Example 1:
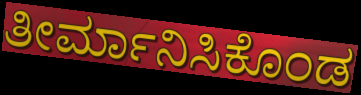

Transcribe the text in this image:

ತೀರ್ಮಾನಿಸಿಕೊಂಡ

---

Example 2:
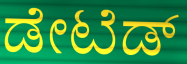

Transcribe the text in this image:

ಡೇಟೆಡ್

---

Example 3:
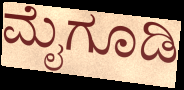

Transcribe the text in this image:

ಮೈಗೂಡಿ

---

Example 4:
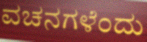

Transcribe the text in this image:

ವಚನಗಳೆಂದು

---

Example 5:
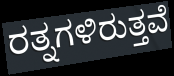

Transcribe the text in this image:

ರತ್ನಗಳಿರುತ್ತವೆ